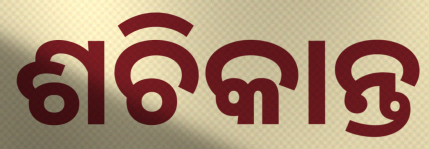
ଶଚିକାନ୍ତ